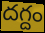
దగ్దం